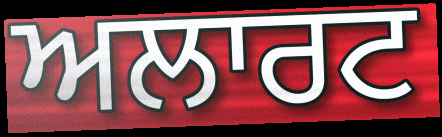
ਅਲਾਰਟ